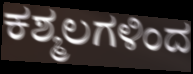
ಕಶ್ಮಲಗಳಿಂದ